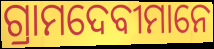
ଗ୍ରାମଦେବୀମାନେ